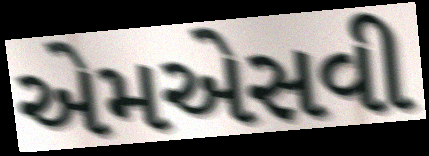
એમએસવી